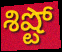
శిష్టో